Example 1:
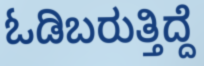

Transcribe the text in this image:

ಓಡಿಬರುತ್ತಿದ್ದೆ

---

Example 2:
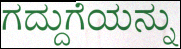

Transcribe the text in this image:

ಗದ್ದುಗೆಯನ್ನು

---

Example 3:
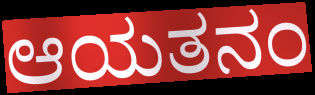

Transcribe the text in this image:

ಆಯತನಂ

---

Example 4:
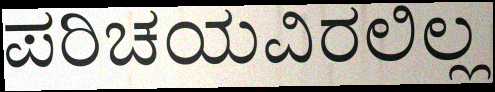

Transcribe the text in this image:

ಪರಿಚಯವಿರಲಿಲ್ಲ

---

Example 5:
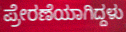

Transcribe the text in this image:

ಪ್ರೇರಣೆಯಾಗಿದ್ದಳು